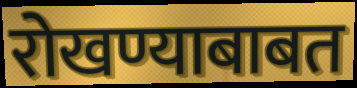
रोखण्याबाबत